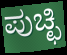
ಪುಚ್ಛಿ